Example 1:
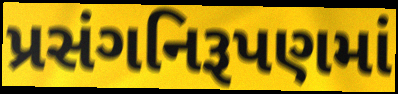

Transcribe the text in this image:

પ્રસંગનિરૂપણમાં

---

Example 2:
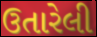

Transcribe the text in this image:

ઉતારેલી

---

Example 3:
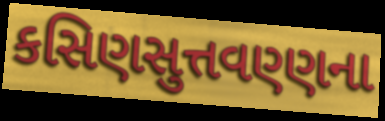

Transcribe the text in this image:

કસિણસુત્તવણ્ણના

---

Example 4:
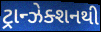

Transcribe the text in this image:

ટ્રાન્ઝેક્શનથી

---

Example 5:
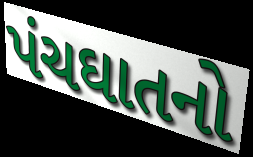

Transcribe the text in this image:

પંચઘાતનો